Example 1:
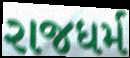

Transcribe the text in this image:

રાજધર્મ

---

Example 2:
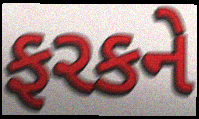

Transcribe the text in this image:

ફરકને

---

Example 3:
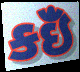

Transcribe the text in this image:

કઇઁં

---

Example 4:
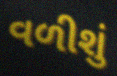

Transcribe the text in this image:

વળીશું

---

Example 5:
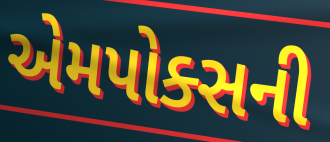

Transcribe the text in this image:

એમપોક્સની